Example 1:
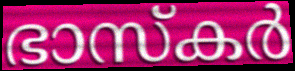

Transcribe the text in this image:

ഭാസ്കർ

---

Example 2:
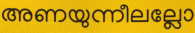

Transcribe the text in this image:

അണയുന്നീലല്ലോ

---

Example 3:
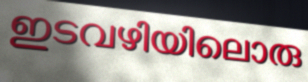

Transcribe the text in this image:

ഇടവഴിയിലൊരു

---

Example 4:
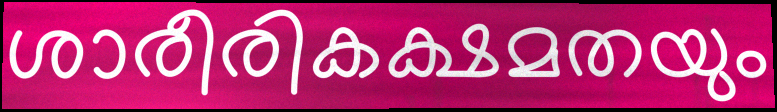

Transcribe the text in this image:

ശാരീരികക്ഷമതയും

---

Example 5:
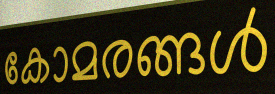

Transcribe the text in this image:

കോമരങ്ങൾ